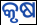
କୃଷ